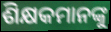
ଶିକ୍ଷକମାନଙ୍କୁ